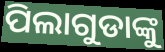
ପିଲାଗୁଡାଙ୍କୁ